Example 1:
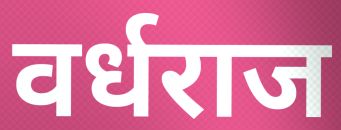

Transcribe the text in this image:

वर्धराज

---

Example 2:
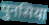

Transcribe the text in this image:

पुनसिया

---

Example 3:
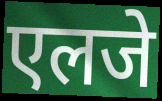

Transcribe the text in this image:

एलजे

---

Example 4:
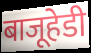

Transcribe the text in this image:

बाजूहेडी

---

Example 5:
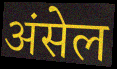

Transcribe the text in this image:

अंसेल